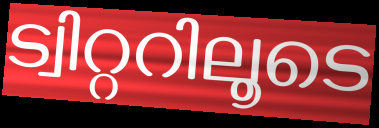
ട്വിറ്ററിലൂടെ